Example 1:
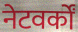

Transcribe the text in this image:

नेटवर्कों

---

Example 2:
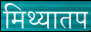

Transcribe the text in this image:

मिथ्यातप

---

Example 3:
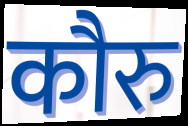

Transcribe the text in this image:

कौरु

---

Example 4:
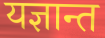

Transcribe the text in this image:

यज्ञान्त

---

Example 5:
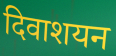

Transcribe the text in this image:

दिवाशयन